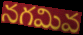
నగమివ